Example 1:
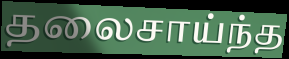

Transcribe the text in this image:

தலைசாய்ந்த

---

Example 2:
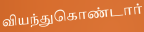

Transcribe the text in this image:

வியந்துகொண்டார்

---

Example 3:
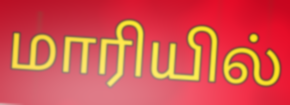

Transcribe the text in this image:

மாரியில்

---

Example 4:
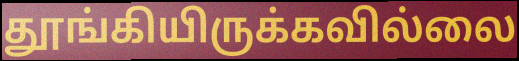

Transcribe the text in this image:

தூங்கியிருக்கவில்லை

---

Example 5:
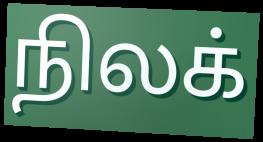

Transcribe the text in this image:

நிலக்